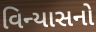
વિન્યાસનો